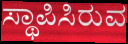
ಸ್ಥಾಪಿಸಿರುವ